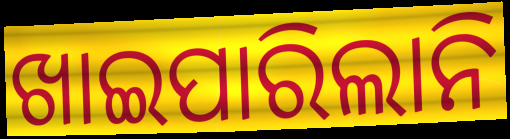
ଖାଇପାରିଲାନି